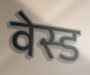
वेस्ड